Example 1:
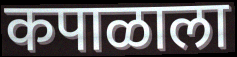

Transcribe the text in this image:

कपाळाला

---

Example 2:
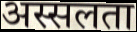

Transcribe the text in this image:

अस्सलता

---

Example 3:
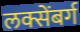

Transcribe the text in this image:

लक्सेंबर्ग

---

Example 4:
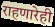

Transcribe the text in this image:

राहणारेही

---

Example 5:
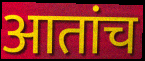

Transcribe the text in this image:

आतांच